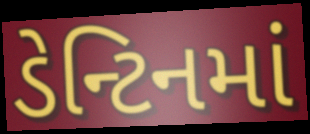
ડેન્ટિનમાં